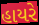
હાયરે